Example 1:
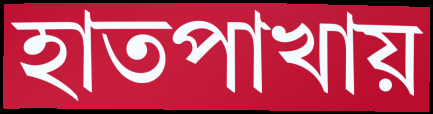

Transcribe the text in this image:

হাতপাখায়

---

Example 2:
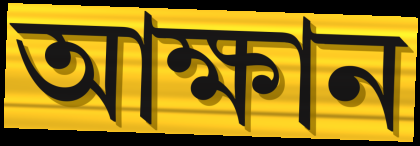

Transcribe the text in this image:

আক্ষান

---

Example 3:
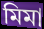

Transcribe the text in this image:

মিমা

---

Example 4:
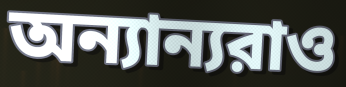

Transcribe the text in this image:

অন্যান্যরাও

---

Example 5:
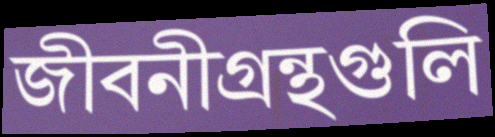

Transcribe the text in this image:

জীবনীগ্রন্থগুলি